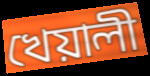
খেয়ালী